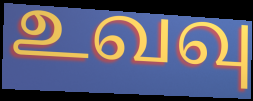
உவவு